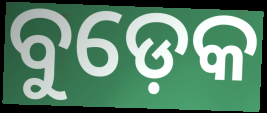
ବୁଡ଼େକ